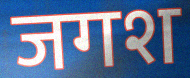
जगश